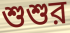
শুশুর